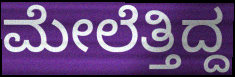
ಮೇಲೆತ್ತಿದ್ದ